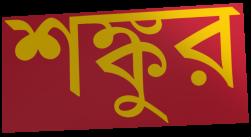
শঙ্কুর